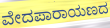
ವೇದಪಾರಾಯಣದ